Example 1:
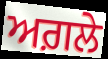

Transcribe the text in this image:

ਅਗ਼ਲੇ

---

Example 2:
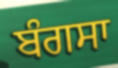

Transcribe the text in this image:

ਬੰਗਸਾ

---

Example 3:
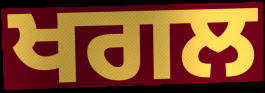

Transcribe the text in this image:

ਖਗਲ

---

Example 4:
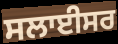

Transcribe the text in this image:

ਸਲਾਈਸਰ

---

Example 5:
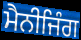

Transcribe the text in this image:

ਮੈਨੀਜਿੰਗ